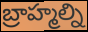
బ్రాహ్మల్ని